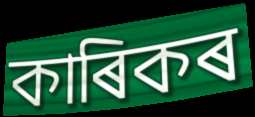
কাৰিকৰ